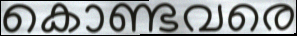
കൊണ്ടവരെ